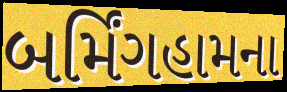
બર્મિંગહામના